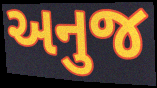
અનુજ